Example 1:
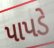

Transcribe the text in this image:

પાપડે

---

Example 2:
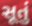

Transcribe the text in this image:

સૂતું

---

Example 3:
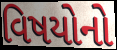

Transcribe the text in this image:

વિષયોનો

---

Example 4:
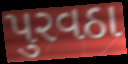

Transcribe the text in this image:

પુરવઠા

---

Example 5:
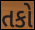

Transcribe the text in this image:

તકો